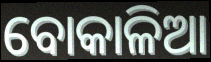
ବୋକାଳିଆ